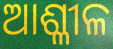
ଆଶ୍ଳୀଳ